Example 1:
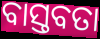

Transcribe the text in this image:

ବାସ୍ତବତା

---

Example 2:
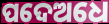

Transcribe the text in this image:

ପଦେଅଧେ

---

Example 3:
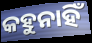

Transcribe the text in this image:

କହୁନାହିଁ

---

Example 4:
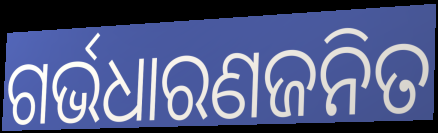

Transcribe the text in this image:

ଗର୍ଭଧାରଣଜନିତ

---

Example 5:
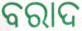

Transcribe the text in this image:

ବରାଦ